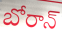
బోరాన్